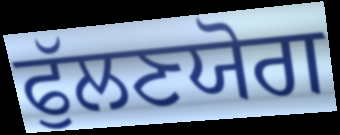
ਫੁੱਲਣਯੋਗ